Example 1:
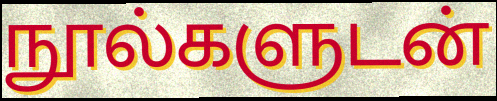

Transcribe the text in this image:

நூல்களுடன்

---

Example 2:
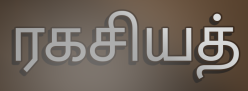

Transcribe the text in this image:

ரகசியத்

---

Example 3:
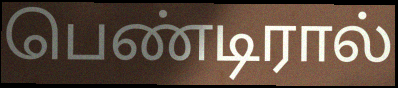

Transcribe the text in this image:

பெண்டிரால்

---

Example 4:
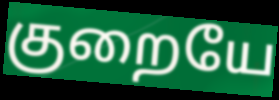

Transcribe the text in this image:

குறையே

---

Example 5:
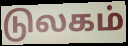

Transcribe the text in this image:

டுலகம்